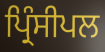
ਪ੍ਰਿੰਸੀਪਲ